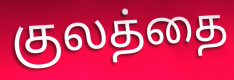
குலத்தை